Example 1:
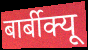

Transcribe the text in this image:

बार्बीक्यू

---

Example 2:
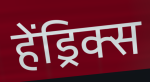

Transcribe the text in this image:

हेंड्रिक्स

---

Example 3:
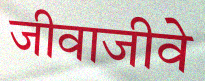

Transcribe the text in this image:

जीवाजीवे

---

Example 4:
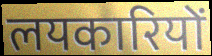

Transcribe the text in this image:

लयकारियों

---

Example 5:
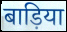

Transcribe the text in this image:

बाड़िया